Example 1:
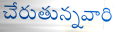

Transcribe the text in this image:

చేరుతున్నవారి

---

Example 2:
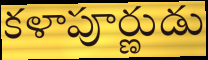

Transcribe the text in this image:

కళాపూర్ణుడు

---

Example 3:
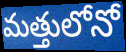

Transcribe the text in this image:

మత్తులోనో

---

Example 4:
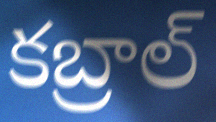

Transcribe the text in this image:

కబ్రాల్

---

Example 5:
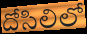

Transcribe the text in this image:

దోసిలిలో